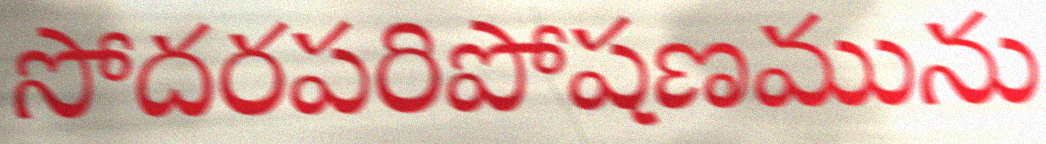
సోదరపరిపోషణమును